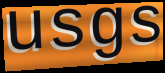
usgs